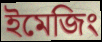
ইমেজিং